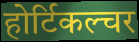
होर्टिकल्चर